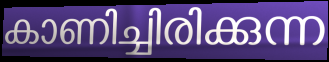
കാണിച്ചിരിക്കുന്ന